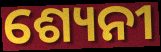
ଶ୍ୟେନୀ